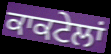
ਕਾਕਟੇਲਾਂ